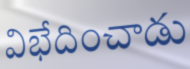
విభేదించాడు